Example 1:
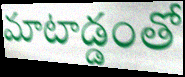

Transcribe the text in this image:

మాటాడ్డంతో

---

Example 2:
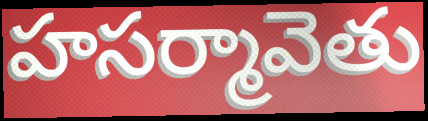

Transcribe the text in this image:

హసర్మావెతు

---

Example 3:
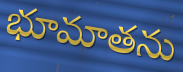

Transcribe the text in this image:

భూమాతను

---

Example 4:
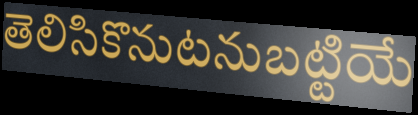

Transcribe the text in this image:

తెలిసికొనుటనుబట్టియే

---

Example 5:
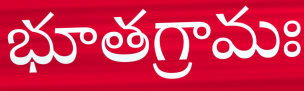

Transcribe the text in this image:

భూతగ్రామః